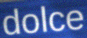
dolce